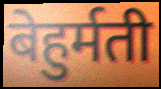
बेहुर्मती